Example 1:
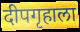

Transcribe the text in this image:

दीपगृहाला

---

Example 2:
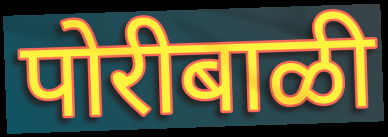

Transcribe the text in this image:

पोरीबाळी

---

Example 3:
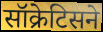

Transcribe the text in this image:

सॉक्रेटिसने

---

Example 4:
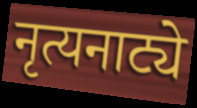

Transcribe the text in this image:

नृत्यनाट्ये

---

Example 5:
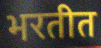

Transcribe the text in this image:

भरतीत